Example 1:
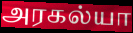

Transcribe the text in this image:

அரகல்யா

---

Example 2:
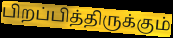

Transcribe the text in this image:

பிறப்பித்திருக்கும்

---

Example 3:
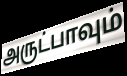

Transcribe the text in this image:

அருட்பாவும்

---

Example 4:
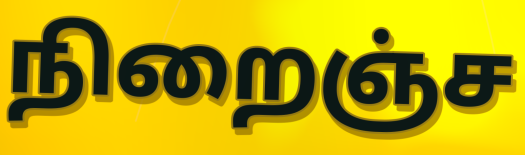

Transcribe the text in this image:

நிறைஞ்ச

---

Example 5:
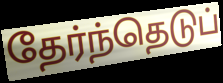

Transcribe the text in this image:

தேர்ந்தெடுப்